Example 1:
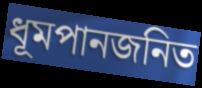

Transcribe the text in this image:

ধূমপানজনিত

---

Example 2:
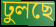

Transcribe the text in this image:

ঢুলছে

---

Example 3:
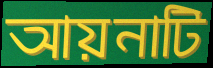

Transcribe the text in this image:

আয়নাটি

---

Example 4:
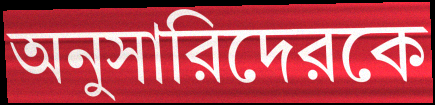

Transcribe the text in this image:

অনুসারিদেরকে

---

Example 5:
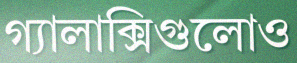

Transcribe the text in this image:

গ্যালাক্সিগুলোও